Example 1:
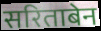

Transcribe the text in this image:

सरिताबेन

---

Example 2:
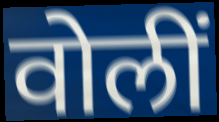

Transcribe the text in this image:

वोलीं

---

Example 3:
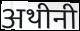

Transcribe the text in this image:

अथीनी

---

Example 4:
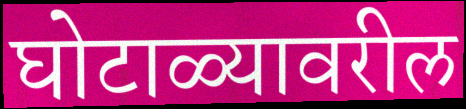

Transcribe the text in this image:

घोटाळ्यावरील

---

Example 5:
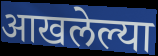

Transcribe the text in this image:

आखलेल्या